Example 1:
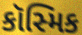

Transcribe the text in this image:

કૉસ્મિક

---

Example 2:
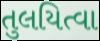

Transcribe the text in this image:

તુલયિત્વા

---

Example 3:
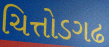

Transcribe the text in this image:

ચિત્તોડગઢ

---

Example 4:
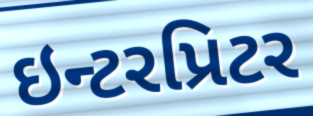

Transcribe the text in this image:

ઇન્ટરપ્રિટર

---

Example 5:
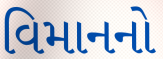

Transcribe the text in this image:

વિમાનનો